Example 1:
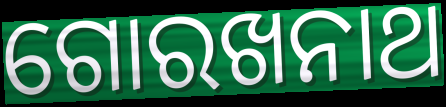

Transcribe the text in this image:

ଗୋରଖନାଥ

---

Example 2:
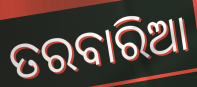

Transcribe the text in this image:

ତରବାରିଆ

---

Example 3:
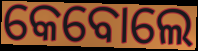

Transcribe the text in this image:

କେବୋଲେ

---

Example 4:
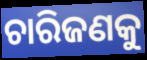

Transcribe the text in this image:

ଚାରିଜଣକୁ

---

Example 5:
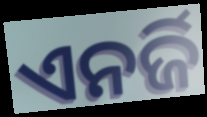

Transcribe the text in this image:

ଏନର୍ଜି